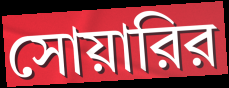
সোয়ারির